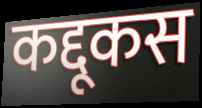
कद्दूकस